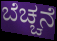
ಬೆಚ್ಚನೆ